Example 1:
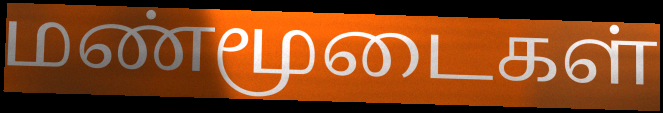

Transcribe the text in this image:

மண்மூடைகள்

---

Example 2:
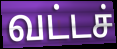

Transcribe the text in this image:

வட்டச்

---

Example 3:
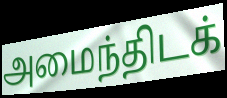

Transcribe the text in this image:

அமைந்திடக்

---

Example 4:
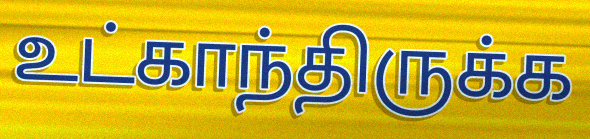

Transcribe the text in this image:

உட்காந்திருக்க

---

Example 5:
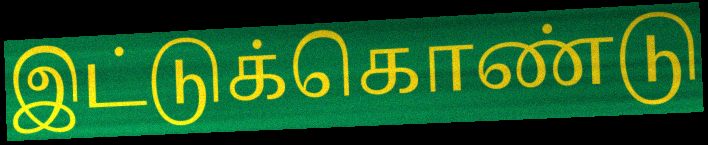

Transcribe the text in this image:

இட்டுக்கொண்டு